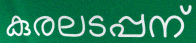
കുരലടപ്പന്